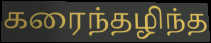
கரைந்தழிந்த